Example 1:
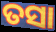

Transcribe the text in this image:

ତସା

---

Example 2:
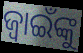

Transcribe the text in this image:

ଜ୍ବାଇଁଙ୍କୁ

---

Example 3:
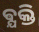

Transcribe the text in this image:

ଵ୍ଯକ୍ତି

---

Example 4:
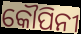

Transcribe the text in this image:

କୌପିନୀ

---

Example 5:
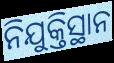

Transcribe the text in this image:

ନିଯୁକ୍ତିସ୍ଥାନ